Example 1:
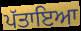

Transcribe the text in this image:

ਪੱਤਾਇਆ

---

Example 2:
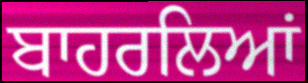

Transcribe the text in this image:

ਬਾਹਰਲਿਆਂ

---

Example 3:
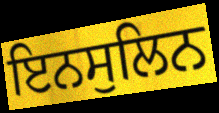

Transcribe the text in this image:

ਇਨਸੁਲਿਨ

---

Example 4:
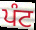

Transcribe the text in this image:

ਪੰਟ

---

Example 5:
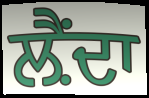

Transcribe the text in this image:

ਲ਼ੈਂਦਾ